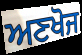
ਅਣਖੋਜ